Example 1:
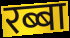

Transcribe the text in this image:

रब्बा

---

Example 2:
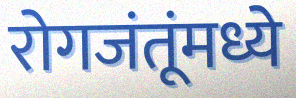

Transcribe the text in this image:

रोगजंतूंमध्ये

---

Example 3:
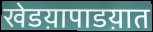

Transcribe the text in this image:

खेडय़ापाडय़ात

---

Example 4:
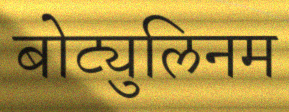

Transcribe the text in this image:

बोट्युलिनम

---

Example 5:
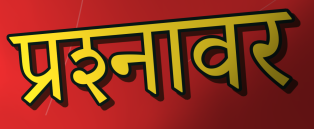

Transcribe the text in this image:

प्रश्‍नावर